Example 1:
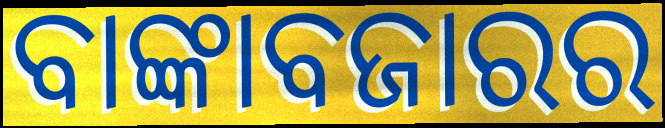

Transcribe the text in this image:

ବାଙ୍କାବଜାରର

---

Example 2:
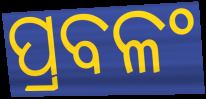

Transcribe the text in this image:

ପ୍ରବଳଂ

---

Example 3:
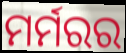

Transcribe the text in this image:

ମର୍ମରର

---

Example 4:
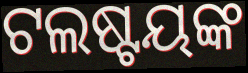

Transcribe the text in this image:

ଟଲଷ୍ଟୟଙ୍କ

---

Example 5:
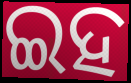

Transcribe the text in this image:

ଇହ